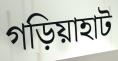
গড়িয়াহাট